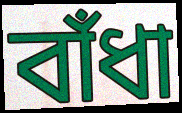
বাঁধা